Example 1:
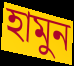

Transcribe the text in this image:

হামুন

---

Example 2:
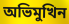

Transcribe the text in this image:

অভিমুখিন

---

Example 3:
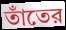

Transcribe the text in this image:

তাঁতের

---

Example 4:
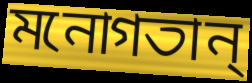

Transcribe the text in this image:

মনোগতান্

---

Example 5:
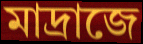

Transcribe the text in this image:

মাদ্রাজে